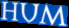
HUM